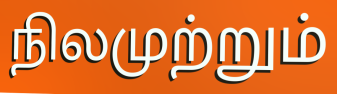
நிலமுற்றும்